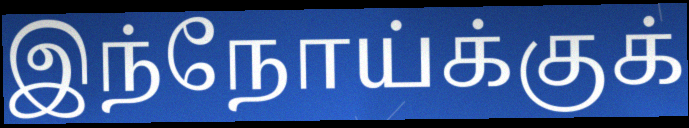
இந்நோய்க்குக்